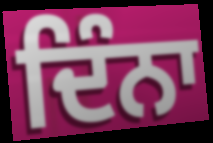
ਦਿੰਨਾ